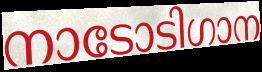
നാടോടിഗാന